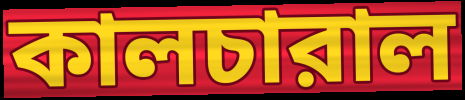
কালচারাল